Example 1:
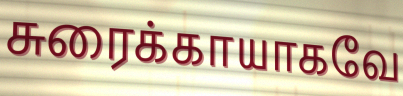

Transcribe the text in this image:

சுரைக்காயாகவே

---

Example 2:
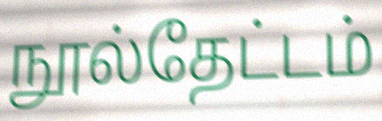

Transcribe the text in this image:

நூல்தேட்டம்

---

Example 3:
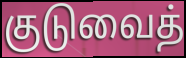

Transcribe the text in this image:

குடுவைத்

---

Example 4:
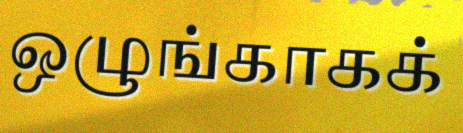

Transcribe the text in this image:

ஒழுங்காகக்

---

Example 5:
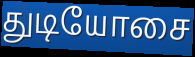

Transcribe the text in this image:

துடியோசை